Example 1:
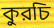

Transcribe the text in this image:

কুরচি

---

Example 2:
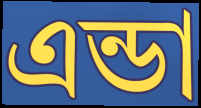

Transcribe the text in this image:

এন্ডা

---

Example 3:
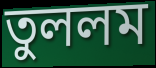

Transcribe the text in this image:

তুললম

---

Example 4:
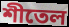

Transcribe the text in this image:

শীতেল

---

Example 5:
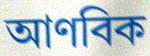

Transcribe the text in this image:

আণবিক